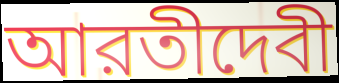
আরতীদেবী